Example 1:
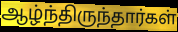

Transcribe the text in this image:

ஆழ்ந்திருந்தார்கள்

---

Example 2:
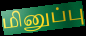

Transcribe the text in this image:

மினுப்பு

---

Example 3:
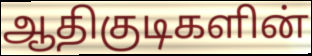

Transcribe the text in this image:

ஆதிகுடிகளின்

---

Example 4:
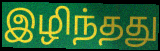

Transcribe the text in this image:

இழிந்தது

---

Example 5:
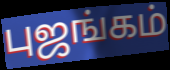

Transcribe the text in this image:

புஜங்கம்